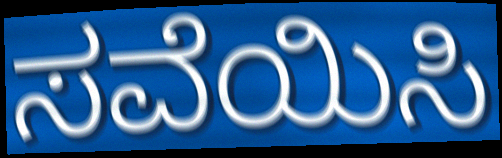
ಸವೆಯಿಸಿ